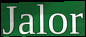
Jalor